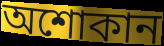
অশোকান